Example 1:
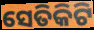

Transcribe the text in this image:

ସେତିକିଟି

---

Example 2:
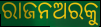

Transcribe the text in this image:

ରାଜନଅରକୁ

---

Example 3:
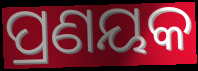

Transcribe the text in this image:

ପ୍ରଣୟକ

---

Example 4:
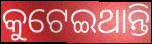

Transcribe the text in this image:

କୁଟେଇଥାନ୍ତି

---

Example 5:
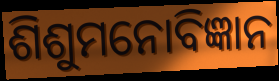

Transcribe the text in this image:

ଶିଶୁମନୋବିଜ୍ଞାନ